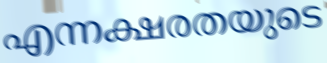
എന്നക്ഷരതയുടെ